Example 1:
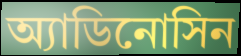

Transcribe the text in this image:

অ্যাডিনোসিন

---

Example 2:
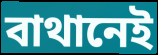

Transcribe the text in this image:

বাথানেই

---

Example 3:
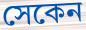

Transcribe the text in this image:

সেকেন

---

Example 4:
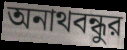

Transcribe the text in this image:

অনাথবন্ধুর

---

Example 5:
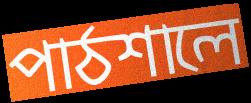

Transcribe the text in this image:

পাঠশালে